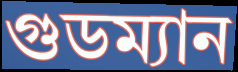
গুডম্যান